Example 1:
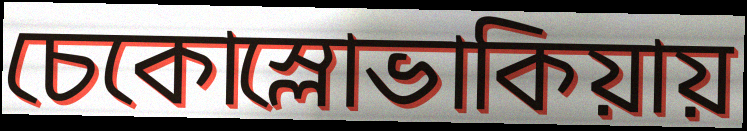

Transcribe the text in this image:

চেকোস্লোভাকিয়ায়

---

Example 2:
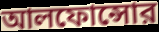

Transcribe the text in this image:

আলফোন্সোর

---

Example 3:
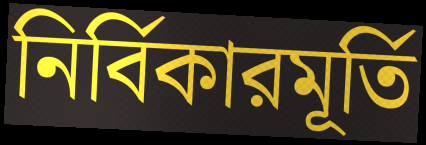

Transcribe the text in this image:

নির্বিকারমূর্তি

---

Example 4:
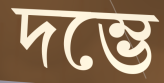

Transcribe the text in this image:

দম্ভে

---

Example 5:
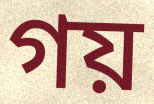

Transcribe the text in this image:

গয়